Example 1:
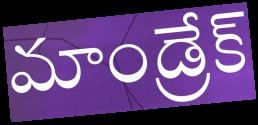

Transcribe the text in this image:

మాండ్రేక్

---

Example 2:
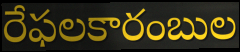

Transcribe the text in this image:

రేఫలకారంబుల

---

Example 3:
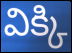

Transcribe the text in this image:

విక్కి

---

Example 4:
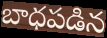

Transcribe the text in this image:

బాధపడిన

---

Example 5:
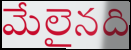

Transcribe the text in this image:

మేలైనది